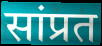
सांप्रत